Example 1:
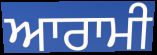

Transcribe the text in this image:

ਆਰਾਮੀ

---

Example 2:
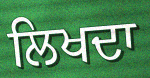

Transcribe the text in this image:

ਲਿਖਦਾ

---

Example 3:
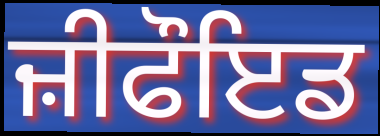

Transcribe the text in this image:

ਜ਼ੀਫੌਇਡ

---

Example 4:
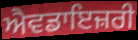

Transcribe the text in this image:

ਐਵਡਾਇਜ਼ਰੀ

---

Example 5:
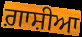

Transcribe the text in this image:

ਗ਼ਾਸ਼ੀਆ